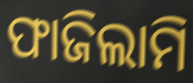
ଫାଜିଲାମି